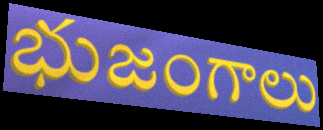
భుజంగాలు